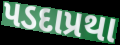
પડદાપ્રથા